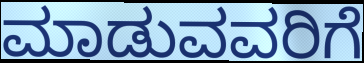
ಮಾಡುವವರಿಗೆ